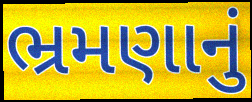
ભ્રમણાનું